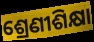
ଶ୍ରେଣୀଶିକ୍ଷା